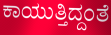
ಕಾಯುತ್ತಿದ್ದಂತೆ